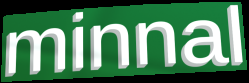
minnal